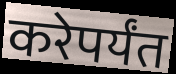
करेपर्यंत